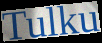
Tulku